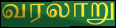
வரலாறு